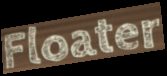
Floater